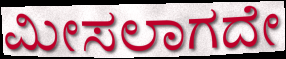
ಮೀಸಲಾಗದೇ